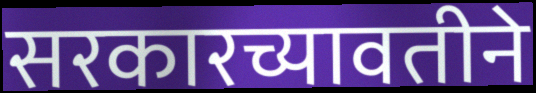
सरकारच्यावतीने